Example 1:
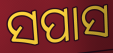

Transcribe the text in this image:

ସପାସ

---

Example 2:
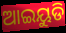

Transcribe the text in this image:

ଆଇୟୁଡି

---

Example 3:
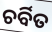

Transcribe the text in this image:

ଚର୍ବିତ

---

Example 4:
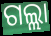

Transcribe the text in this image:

ଗଲ୍ଲା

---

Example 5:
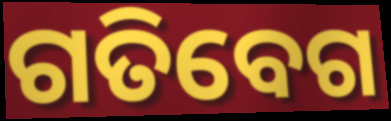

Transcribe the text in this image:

ଗତିବେଗ